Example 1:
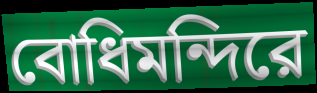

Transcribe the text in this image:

বোধিমন্দিরে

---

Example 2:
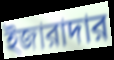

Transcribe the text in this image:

ইজারাদার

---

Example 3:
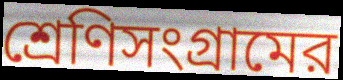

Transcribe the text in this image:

শ্রেণিসংগ্রামের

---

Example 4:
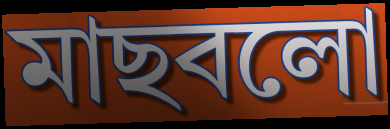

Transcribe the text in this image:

মাছবলো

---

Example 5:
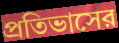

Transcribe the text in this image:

প্রতিভাসের